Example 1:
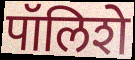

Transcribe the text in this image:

पॉलिशे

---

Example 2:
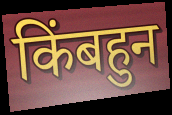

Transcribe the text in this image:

किंबहुन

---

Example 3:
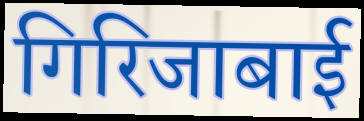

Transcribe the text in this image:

गिरिजाबाई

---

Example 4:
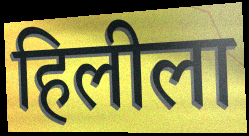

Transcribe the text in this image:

हिलीला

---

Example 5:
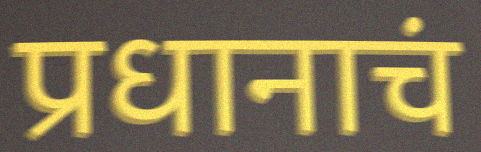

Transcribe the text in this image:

प्रधानाचं